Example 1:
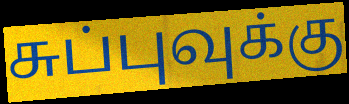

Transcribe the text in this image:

சுப்புவுக்கு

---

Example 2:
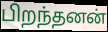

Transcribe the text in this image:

பிறந்தனன்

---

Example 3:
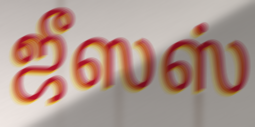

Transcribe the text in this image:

ஜீஸஸ்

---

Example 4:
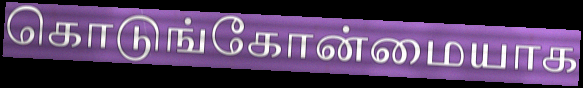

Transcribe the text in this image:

கொடுங்கோன்மையாக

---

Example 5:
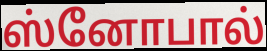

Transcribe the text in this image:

ஸ்னோபால்